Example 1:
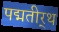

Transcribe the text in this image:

पद्मतीर्थ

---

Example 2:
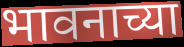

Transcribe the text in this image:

भावनाच्या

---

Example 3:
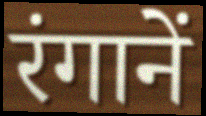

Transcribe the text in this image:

रंगानें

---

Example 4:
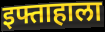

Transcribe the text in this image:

इफ्ताहाला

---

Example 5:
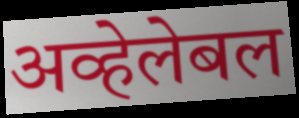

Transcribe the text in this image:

अव्हेलेबल